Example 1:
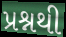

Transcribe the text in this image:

પ્રશ્નથી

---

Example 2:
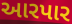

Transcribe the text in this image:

આરપાર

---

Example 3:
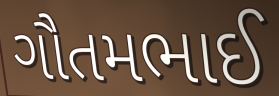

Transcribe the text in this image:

ગૌતમભાઈ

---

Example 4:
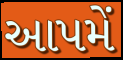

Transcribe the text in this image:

આપમેં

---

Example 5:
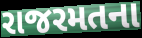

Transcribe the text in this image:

રાજરમતના